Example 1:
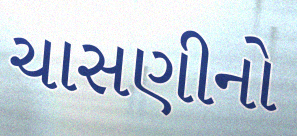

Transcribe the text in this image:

ચાસણીનો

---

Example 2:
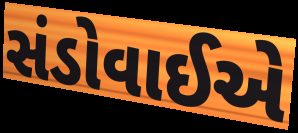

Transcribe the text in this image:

સંડોવાઈએ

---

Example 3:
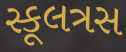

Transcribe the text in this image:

સ્કૂલત્રસ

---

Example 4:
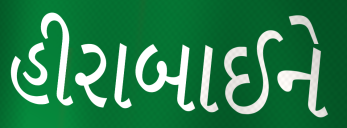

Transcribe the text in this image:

હીરાબાઈને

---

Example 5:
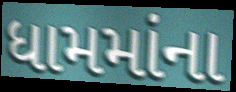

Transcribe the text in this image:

ધામમાંના